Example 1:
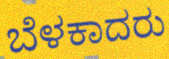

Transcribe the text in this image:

ಬೆಳಕಾದರು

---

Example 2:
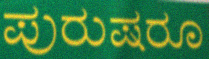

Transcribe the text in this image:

ಪುರುಷರೂ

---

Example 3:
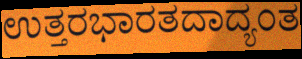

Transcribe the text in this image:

ಉತ್ತರಭಾರತದಾದ್ಯಂತ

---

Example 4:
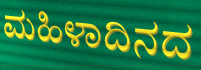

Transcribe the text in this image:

ಮಹಿಳಾದಿನದ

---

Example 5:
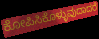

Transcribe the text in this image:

ಕೋಪಿಸಿಕೊಳ್ಳುವುದಾದರೆ